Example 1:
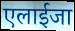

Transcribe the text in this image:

एलाईजा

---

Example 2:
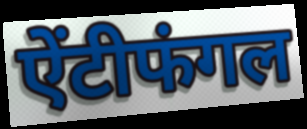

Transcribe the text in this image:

ऐंटीफंगल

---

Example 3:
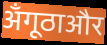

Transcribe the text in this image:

अँगूठाऔर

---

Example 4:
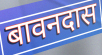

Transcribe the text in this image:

बावनदास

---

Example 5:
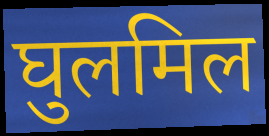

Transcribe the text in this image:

घुलमिल